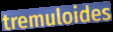
tremuloides